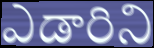
ఎడారిని